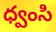
ధ్వంసి